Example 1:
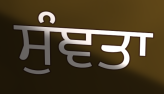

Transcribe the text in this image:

ਸੁੰਞਤਾ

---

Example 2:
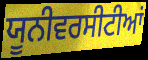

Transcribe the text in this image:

ਯੂਨੀਵਰਸੀਟੀਆਂ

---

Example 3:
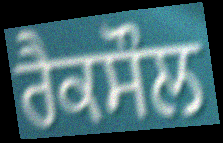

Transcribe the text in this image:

ਰੈਕਸੌਲ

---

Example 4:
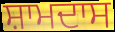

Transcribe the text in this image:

ਸ਼ਾਮਦਾਸ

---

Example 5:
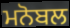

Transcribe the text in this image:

ਮਨੋਬਲ